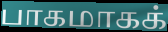
பாகமாகக்